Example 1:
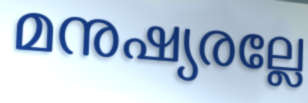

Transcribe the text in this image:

മനുഷ്യരല്ലേ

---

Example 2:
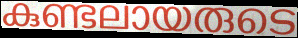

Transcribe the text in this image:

കുണ്ടലായരുടെ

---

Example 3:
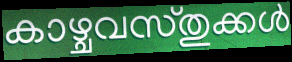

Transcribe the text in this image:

കാഴ്ചവസ്തുക്കൾ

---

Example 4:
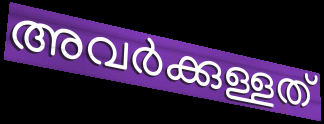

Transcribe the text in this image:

അവർക്കുള്ളത്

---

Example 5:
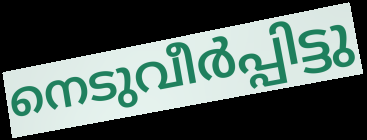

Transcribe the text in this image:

നെടുവീർപ്പിട്ടു